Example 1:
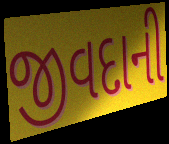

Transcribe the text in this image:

જીવદાની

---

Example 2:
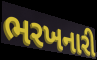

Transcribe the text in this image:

ભરખનારી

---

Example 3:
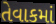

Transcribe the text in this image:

તેવાકમાં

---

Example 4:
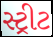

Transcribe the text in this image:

સ્ટ્રીટ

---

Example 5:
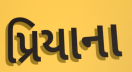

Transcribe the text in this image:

પ્રિયાના